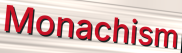
Monachism